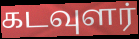
கடவுளர்